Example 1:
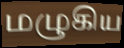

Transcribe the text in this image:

மழுகிய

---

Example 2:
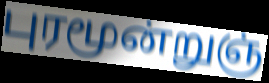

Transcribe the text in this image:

புரமூன்றுஞ்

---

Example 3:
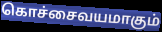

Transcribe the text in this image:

கொச்சைவயமாகும்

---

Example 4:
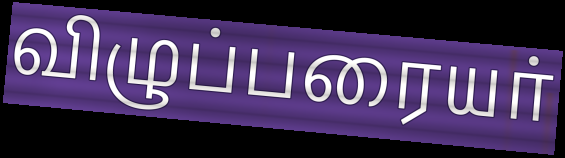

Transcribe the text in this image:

விழுப்பரையர்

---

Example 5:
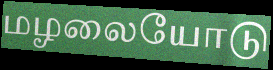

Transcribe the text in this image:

மழலையோடு